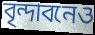
বৃন্দাবনেও